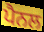
ਪੈਨਲ